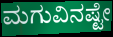
ಮಗುವಿನಷ್ಟೇ